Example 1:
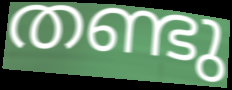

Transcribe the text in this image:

തണ്ടു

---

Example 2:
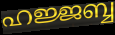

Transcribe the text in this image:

ഹജ്ജബ്ബ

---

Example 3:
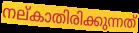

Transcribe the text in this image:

നല്കാതിരിക്കുന്നത്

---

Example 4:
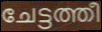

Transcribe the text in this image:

ചേട്ടത്തീ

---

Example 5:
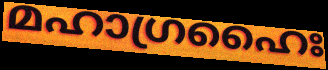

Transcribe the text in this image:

മഹാഗ്രഹൈഃ